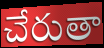
చేరుతా